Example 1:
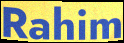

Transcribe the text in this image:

Rahim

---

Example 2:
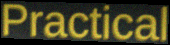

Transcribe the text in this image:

Practical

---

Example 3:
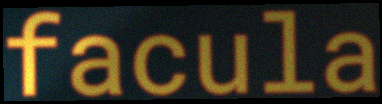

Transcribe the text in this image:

facula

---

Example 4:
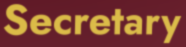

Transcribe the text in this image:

Secretary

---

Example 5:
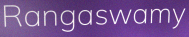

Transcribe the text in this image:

Rangaswamy